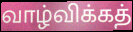
வாழ்விக்கத்